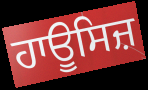
ਹਾਊਸਿਜ਼